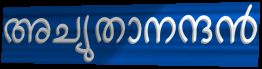
അച്യുതാനന്ദൻ